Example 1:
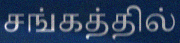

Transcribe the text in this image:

சங்கத்தில்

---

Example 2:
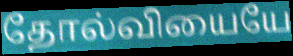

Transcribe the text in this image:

தோல்வியையே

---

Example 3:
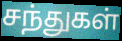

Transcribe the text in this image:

சந்துகள்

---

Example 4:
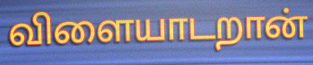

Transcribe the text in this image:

விளையாடறான்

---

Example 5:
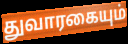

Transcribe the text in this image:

துவாரகையும்